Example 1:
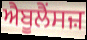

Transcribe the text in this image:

ਐਬੂਲੈਂਸਜ਼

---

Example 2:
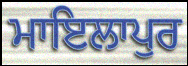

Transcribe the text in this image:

ਮਾਇਲਾਪੁਰ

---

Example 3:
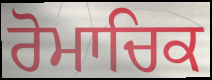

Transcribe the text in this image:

ਰੋਮਾਚਿਕ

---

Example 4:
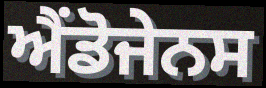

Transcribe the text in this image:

ਐਂਡੋਜੇਨਸ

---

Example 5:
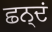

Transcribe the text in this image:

ਛਨ੍ਦਂ